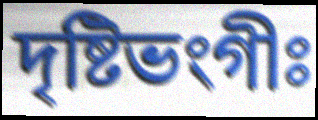
দৃষ্টিভংগীঃ